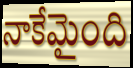
నాకేమైంది